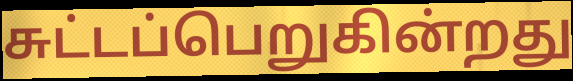
சுட்டப்பெறுகின்றது